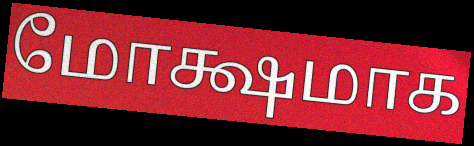
மோக்ஷமாக